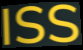
ISS